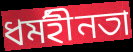
ধর্মহীনতা